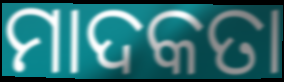
ମାଦକତା